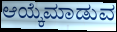
ಆಯ್ಕೆಮಾಡುವ